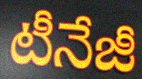
టీనేజీ